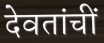
देवतांचीं